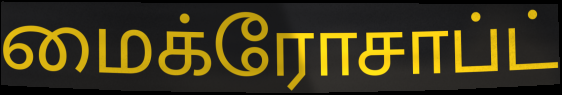
மைக்ரோசாப்ட்